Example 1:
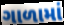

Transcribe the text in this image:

ગાળામાં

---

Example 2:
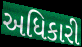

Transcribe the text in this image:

અધિકારી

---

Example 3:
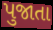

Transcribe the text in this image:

પુજાતા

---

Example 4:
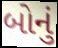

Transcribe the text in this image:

બોનું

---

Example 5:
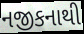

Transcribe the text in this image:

નજીકનાથી